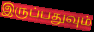
இருப்பதுவும்